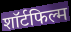
शॉर्टफिल्म